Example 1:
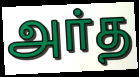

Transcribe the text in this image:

அர்த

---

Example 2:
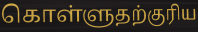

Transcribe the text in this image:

கொள்ளுதற்குரிய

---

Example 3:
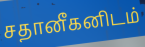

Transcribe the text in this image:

சதானீகனிடம்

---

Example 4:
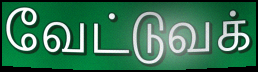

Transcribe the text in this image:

வேட்டுவக்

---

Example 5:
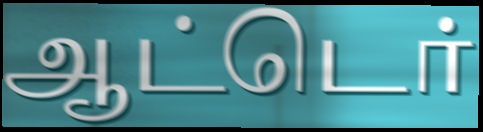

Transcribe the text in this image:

ஆட்டெர்